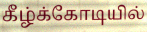
கீழ்க்கோடியில்